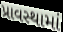
પ્રાવસ્થામાં